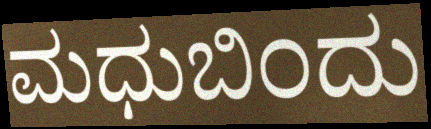
ಮಧುಬಿಂದು